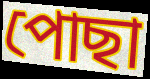
পোছা